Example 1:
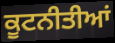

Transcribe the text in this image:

ਕੂਟਨੀਤੀਆਂ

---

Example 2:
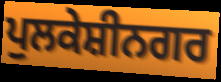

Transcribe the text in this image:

ਪੁਲਕੇਸ਼ੀਨਗਰ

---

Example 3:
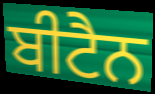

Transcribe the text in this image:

ਬੀਟੈਨ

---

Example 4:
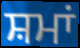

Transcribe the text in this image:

ਸ਼ਮਾਂ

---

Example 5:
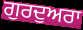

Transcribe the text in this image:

ਗੁਰਦੁਅਰਾ